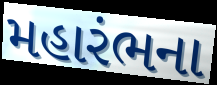
મહારંભના